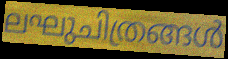
ലഘുചിത്രങ്ങൾ